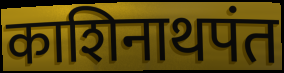
काशिनाथपंत